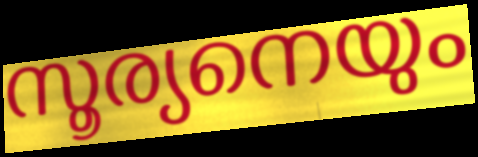
സൂര്യനെയും